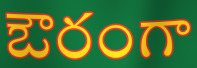
ఔరంగా